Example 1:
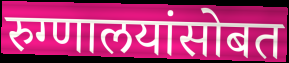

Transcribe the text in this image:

रुग्णालयांसोबत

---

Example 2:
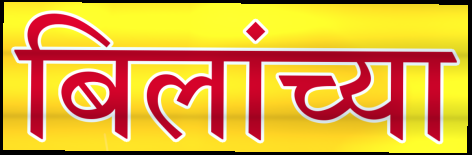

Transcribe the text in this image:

बिलांच्या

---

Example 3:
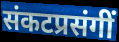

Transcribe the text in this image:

संकटप्रसंगीं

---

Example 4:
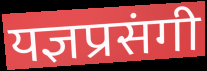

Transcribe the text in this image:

यज्ञप्रसंगी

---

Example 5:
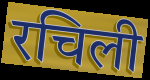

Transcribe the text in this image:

रचिली